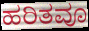
ಹರಿತವೂ